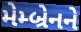
મેમ્બ્રેનને